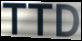
TTD